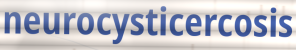
neurocysticercosis